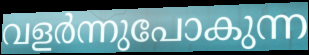
വളർന്നുപോകുന്ന